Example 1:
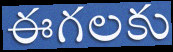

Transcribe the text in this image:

ఈగలకు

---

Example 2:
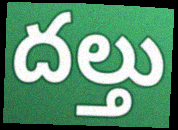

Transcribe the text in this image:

దల్తు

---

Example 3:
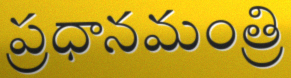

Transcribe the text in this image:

ప్రధానమంత్రి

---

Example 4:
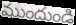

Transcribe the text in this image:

ముందుండి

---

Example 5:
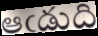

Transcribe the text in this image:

ఆఁడుది